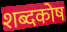
शब्दकोष